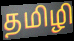
தமிழி